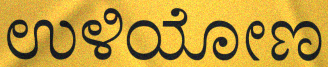
ಉಳಿಯೋಣ